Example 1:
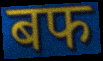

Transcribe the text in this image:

बफ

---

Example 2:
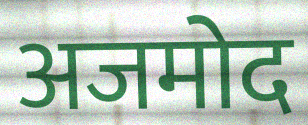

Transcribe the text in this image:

अजमोद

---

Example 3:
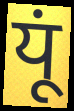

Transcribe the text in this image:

यूं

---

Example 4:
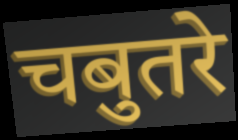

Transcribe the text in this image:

चबुतरे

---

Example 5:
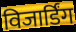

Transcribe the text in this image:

विजार्डिंग